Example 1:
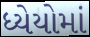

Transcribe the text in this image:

ધ્યેયોમાં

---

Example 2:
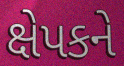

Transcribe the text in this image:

ક્ષેપકને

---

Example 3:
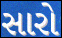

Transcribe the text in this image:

સારો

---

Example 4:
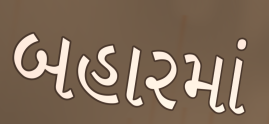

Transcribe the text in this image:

બહારમાં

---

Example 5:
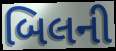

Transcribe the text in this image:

બિલની